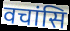
वचांसि